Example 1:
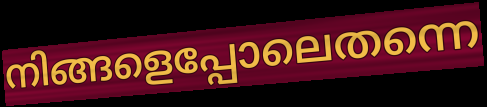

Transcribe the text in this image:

നിങ്ങളെപ്പോലെതന്നെ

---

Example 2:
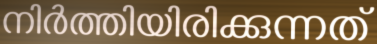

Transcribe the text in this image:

നിർത്തിയിരിക്കുന്നത്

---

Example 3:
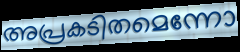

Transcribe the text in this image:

അപ്രകടിതമെന്നോ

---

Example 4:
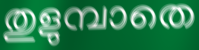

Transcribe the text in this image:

തുളുമ്പാതെ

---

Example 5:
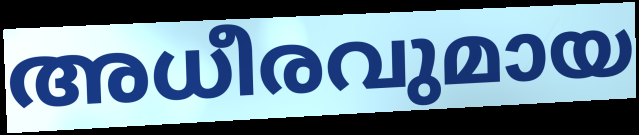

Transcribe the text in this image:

അധീരവുമായ